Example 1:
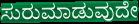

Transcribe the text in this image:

ಸುರುಮಾಡುವುದೇ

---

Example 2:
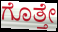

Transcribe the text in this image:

ಗೊತ್ತೇ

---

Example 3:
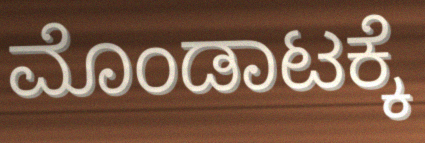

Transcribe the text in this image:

ಮೊಂಡಾಟಕ್ಕೆ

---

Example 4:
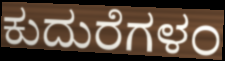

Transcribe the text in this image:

ಕುದುರೆಗಳಂ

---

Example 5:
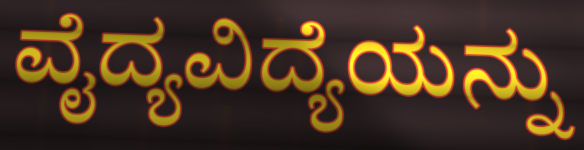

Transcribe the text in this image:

ವೈದ್ಯವಿದ್ಯೆಯನ್ನು